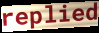
replied